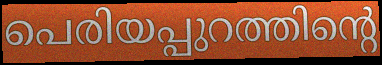
പെരിയപ്പുറത്തിന്റെ